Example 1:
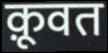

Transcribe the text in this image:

क़ूवत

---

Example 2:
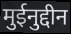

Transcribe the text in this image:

मुईनुद्दीन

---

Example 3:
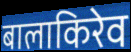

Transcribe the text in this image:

बालाकिरेव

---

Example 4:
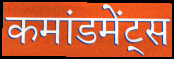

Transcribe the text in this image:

कमांडमेंट्स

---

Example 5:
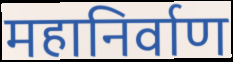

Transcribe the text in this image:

महानिर्वाण